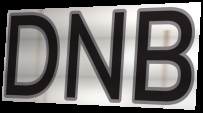
DNB